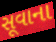
સૂવાના